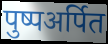
पुष्पअर्पित